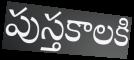
పుస్తకాలకి